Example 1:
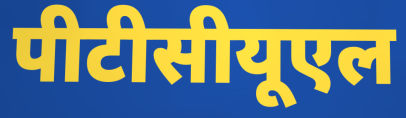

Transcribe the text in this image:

पीटीसीयूएल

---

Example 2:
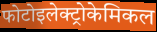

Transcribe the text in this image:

फोटोइलेक्ट्रोकेमिकल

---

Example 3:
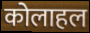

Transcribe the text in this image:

कोलाहल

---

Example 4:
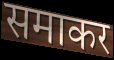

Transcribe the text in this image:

समाकर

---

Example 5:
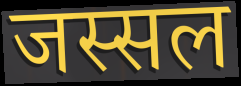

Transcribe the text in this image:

जस्सल